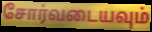
சோர்வடையவும்